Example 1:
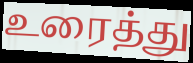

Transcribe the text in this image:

உரைத்து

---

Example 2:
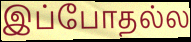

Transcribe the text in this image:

இப்போதல்ல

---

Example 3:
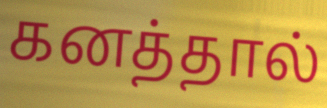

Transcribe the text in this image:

கனத்தால்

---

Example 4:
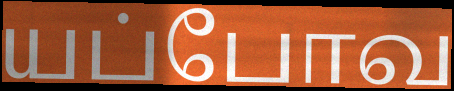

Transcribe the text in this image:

யப்போவ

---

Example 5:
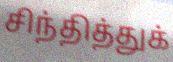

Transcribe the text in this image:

சிந்தித்துக்